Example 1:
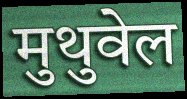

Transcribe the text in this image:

मुथुवेल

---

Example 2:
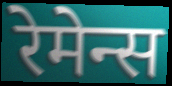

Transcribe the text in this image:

रेमेन्स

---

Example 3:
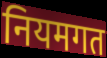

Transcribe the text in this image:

नियमगत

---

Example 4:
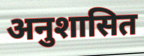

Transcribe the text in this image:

अनुशासित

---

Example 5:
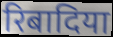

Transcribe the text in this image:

रिबादिया